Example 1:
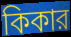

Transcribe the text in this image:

কিকার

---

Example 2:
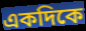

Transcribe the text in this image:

একদিকে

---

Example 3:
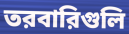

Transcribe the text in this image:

তরবারিগুলি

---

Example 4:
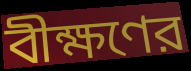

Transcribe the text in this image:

বীক্ষণের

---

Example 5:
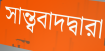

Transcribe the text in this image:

সান্ত্ববাদদ্বারা